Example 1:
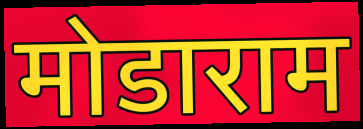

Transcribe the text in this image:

मोडाराम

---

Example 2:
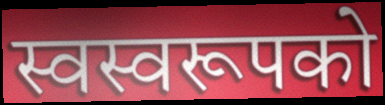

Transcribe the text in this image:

स्वस्वरूपको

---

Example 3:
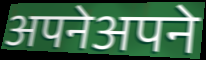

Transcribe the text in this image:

अपनेअपने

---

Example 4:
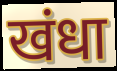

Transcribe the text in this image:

खंधा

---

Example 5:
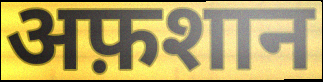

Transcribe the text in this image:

अफ़शान